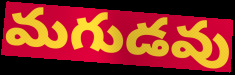
మగుడవు